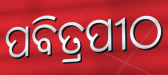
ପବିତ୍ରପୀଠ